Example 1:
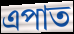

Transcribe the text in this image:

এপাত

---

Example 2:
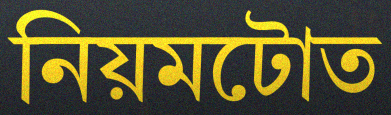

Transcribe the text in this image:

নিয়মটোত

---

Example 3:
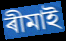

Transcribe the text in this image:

ৰীমাই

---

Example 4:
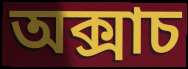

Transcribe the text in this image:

অক্সাচ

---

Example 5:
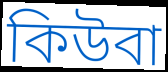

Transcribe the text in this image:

কিউবা